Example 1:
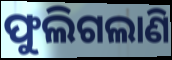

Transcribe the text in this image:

ଫୁଲିଗଲାଣି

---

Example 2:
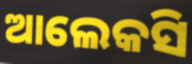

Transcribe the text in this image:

ଆଲେକସି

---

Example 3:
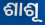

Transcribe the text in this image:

ଶାଶୂ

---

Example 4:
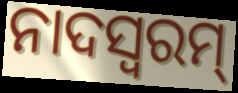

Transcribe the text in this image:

ନାଦସ୍ଵରମ୍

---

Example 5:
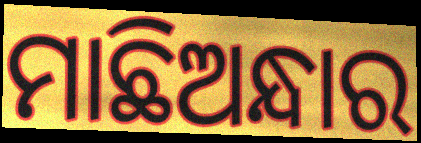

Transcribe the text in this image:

ମାଛିଅନ୍ଧାର